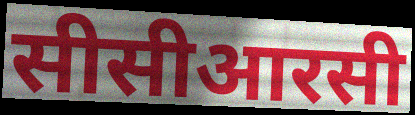
सीसीआरसी